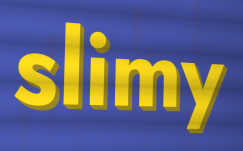
slimy